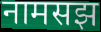
नामसझ